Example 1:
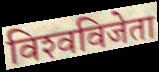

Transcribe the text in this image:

विश्वविजेता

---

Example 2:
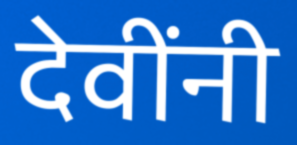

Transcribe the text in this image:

देवींनी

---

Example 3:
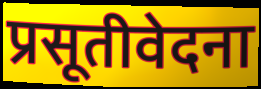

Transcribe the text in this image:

प्रसूतीवेदना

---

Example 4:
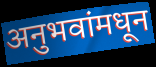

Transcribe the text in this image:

अनुभवांमधून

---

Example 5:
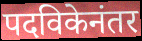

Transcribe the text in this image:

पदविकेनंतर